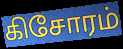
கிசோரம்